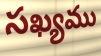
సఖ్యము